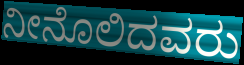
ನೀನೊಲಿದವರು